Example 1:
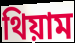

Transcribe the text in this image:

থিয়াম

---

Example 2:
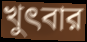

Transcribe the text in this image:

খুৎবার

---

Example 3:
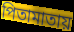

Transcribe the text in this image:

পিতামাতায়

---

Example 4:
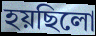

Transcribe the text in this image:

হয়ছিলো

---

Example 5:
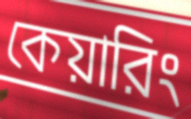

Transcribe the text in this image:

কেয়ারিং